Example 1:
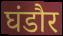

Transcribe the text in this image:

घंडौर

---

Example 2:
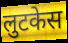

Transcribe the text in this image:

लुटकेस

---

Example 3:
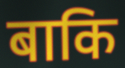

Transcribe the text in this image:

बाकि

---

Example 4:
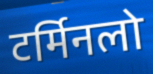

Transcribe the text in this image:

टर्मिनलो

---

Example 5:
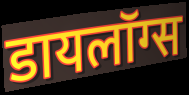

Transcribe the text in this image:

डायलॉग्स